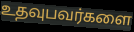
உதவுபவர்களை